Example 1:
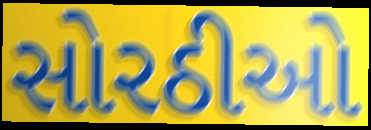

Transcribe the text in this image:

સોરઠીઓ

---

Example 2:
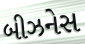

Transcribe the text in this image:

બીઝનેસ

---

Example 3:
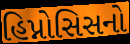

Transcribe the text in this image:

હિપ્નોસિસનો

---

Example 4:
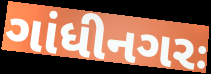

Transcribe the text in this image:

ગાંધીનગરઃ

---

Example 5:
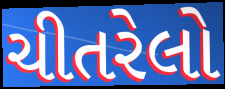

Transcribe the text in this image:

ચીતરેલો